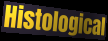
Histological